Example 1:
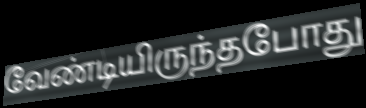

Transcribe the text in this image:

வேண்டியிருந்தபோது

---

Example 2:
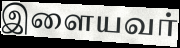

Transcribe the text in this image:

இளையவர்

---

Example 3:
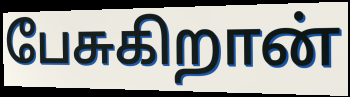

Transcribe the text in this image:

பேசுகிறான்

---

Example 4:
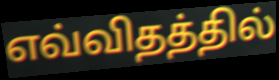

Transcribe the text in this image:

எவ்விதத்தில்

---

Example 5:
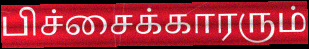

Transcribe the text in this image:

பிச்சைக்காரரும்